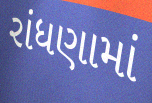
રાંધણામાં